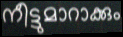
നീട്ടുമാറാക്കും